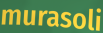
murasoli